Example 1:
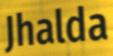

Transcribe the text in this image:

Jhalda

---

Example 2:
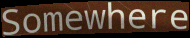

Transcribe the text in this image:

Somewhere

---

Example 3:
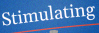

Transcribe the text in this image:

Stimulating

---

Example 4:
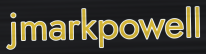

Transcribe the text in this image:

jmarkpowell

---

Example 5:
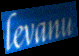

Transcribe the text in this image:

levanu